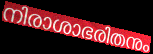
നിരാശാഭരിതനും